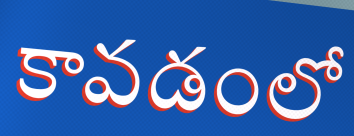
కావడంలో